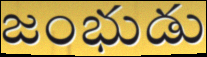
జంభుడు